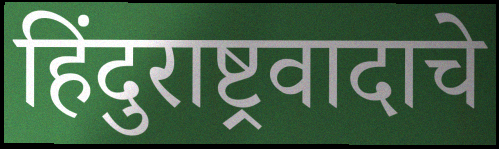
हिंदुराष्ट्रवादाचे